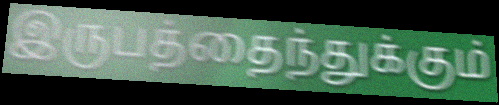
இருபத்தைந்துக்கும்